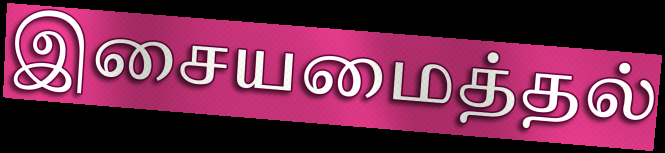
இசையமைத்தல்